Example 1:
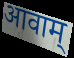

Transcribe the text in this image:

आवाम्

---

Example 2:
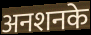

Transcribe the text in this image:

अनशनके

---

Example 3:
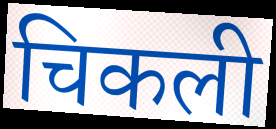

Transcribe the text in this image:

चिकली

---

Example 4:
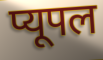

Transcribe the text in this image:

प्यूपल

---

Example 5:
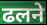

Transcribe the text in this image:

ढलने